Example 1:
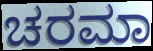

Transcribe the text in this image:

ಚರಮಾ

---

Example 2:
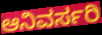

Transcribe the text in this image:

ಆನಿವರ್ಸರಿ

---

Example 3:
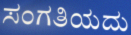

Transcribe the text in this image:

ಸಂಗತಿಯದು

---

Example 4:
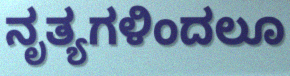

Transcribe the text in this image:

ನೃತ್ಯಗಳಿಂದಲೂ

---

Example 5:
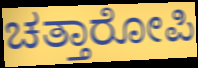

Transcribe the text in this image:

ಚತ್ತಾರೋಪಿ